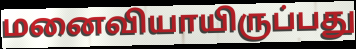
மனைவியாயிருப்பது